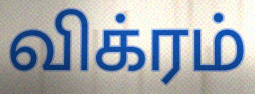
விக்ரம்